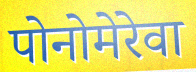
पोनोमेरेवा